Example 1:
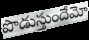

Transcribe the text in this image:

పొడుస్తుందేమో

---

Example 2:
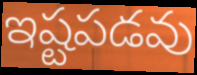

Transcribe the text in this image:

ఇష్టపడవు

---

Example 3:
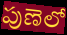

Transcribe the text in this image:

పుణెలో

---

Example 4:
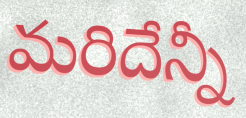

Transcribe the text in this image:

మరిదేన్నీ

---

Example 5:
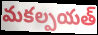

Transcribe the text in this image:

మకల్పయత్